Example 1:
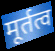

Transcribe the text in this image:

मूर्तत्व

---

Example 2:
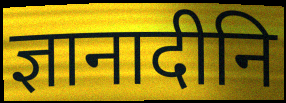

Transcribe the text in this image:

ज्ञानादीनि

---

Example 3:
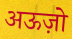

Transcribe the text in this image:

अऊज़ो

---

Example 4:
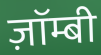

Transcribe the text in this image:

ज़ॉम्बी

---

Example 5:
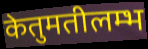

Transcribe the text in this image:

केतुमतीलम्भ